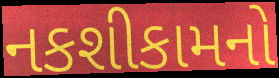
નકશીકામનો